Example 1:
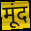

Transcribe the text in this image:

मूंद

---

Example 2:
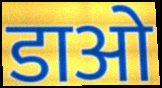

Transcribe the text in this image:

डाओ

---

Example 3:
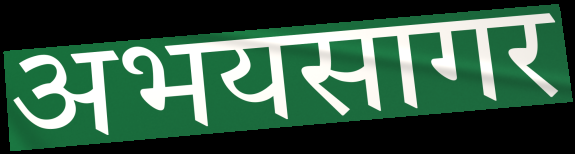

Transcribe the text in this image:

अभयसागर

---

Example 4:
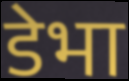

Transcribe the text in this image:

डेभा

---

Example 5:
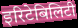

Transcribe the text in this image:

इरिटेबिलिटी